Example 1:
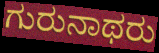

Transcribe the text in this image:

ಗುರುನಾಥರು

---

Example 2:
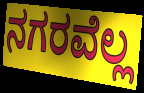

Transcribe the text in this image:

ನಗರವೆಲ್ಲ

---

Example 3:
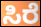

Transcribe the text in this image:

ಸಿರೆ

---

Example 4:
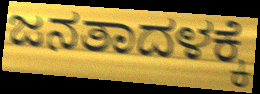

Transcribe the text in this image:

ಜನತಾದಳಕ್ಕೆ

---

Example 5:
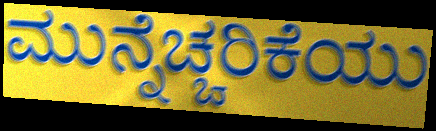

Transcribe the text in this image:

ಮುನ್ನೆಚ್ಚರಿಕೆಯು